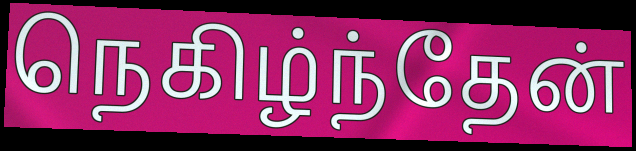
நெகிழ்ந்தேன்